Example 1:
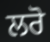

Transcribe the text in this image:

ਲਰੋ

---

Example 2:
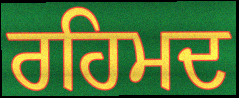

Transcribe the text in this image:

ਰਹਿਮਦ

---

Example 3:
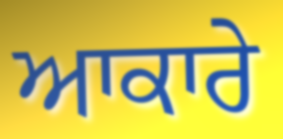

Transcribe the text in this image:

ਆਕਾਰੇ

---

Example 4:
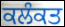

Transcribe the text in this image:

ਕਲੰਕਤ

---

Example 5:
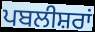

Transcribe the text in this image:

ਪਬਲੀਸ਼ਰਾਂ